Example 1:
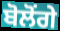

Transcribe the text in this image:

ਬੋਲੋਂਗੇ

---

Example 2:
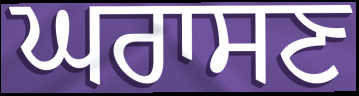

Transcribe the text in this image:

ਘਰਾਸਣ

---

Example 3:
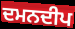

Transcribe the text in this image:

ਦਮਨਦੀਪ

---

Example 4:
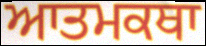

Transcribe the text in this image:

ਆਤਮਕਥਾ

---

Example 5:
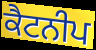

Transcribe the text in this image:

ਕੈਟਨੀਪ